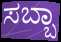
ಸಬ್ಬಾ